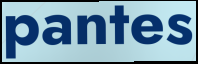
pantes